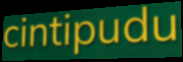
cintipudu